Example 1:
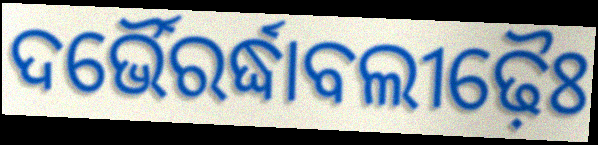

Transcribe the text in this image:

ଦର୍ଭୈରର୍ଦ୍ଧାବଲୀଢ଼ୈଃ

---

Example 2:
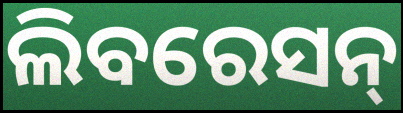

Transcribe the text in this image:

ଲିବରେସନ୍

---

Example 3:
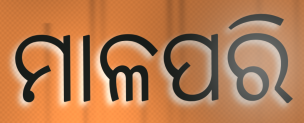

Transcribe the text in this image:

ମାଳପରି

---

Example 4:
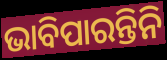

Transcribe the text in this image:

ଭାବିପାରନ୍ତିନି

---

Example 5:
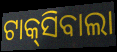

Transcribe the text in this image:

ଟାକ୍‌ସିବାଲା